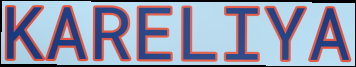
KARELIYA